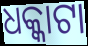
ଧକ୍କାଟା